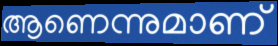
ആണെന്നുമാണ്